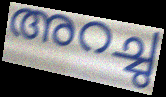
അറച്ചു